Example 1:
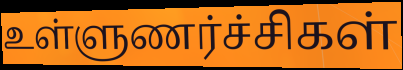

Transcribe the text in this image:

உள்ளுணர்ச்சிகள்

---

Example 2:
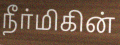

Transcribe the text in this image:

நீர்மிகின்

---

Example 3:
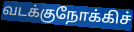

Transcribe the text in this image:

வடக்குநோக்கிச்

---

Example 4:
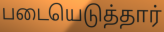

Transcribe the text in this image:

படையெடுத்தார்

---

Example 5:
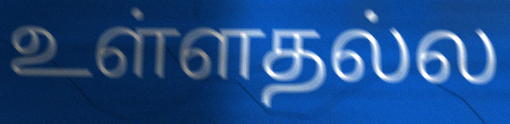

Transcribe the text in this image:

உள்ளதல்ல